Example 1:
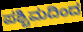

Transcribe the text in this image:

ಪಶ್ಚಿಮದಿಂದ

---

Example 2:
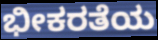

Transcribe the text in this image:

ಭೀಕರತೆಯ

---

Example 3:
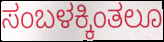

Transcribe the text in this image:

ಸಂಬಳಕ್ಕಿಂತಲೂ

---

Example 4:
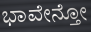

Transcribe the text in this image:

ಭಾವೇನ್ತೋ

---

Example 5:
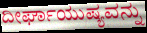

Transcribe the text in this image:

ದೀರ್ಘಾಯುಷ್ಯವನ್ನು